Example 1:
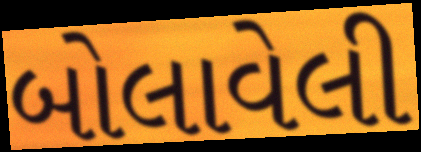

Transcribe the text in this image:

બોલાવેલી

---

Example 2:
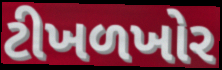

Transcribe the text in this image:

ટીખળખોર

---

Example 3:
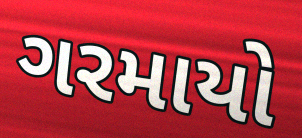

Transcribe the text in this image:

ગરમાયો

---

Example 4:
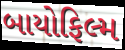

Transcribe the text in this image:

બાયોફિલ્મ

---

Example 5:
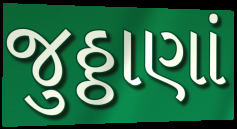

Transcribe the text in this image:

જુઠ્ઠાણાં